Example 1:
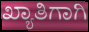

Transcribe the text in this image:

ಖ್ಯಾತಿಗಾಗಿ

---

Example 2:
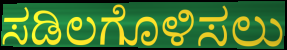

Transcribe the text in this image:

ಸಡಿಲಗೊಳಿಸಲು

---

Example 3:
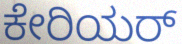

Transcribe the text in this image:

ಕೇರಿಯರ್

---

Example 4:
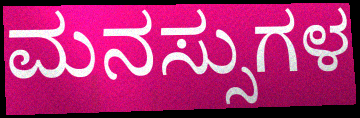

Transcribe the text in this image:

ಮನಸ್ಸುಗಳ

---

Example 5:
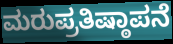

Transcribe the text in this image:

ಮರುಪ್ರತಿಷ್ಠಾಪನೆ